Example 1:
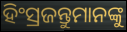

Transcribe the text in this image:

ହିଂସ୍ରଜନ୍ତୁମାନଙ୍କୁ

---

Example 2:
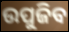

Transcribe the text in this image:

ଉପୁଜିବ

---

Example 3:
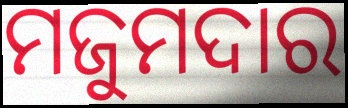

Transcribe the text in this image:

ମଜୁମଦାର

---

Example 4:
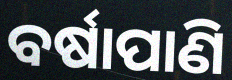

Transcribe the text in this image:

ବର୍ଷାପାଣି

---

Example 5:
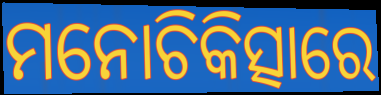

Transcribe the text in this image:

ମନୋଚିକିତ୍ସାରେ